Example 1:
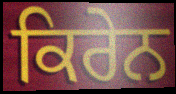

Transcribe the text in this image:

ਕਿਰੇਨ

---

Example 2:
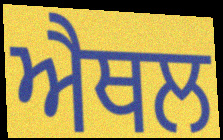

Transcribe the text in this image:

ਐਥਲ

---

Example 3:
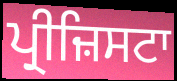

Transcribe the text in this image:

ਪ੍ਰੀਜ਼ਿਸਟਾ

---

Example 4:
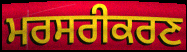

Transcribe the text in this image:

ਮਰਸਰੀਕਰਣ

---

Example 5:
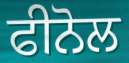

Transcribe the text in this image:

ਫੀਨੋਲ